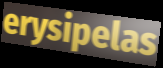
erysipelas